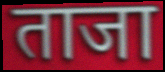
ताजा